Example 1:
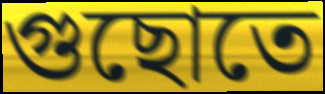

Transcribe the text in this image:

গুছোতে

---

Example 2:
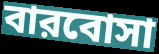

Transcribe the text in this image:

বারবোসা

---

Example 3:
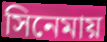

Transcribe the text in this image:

সিনেমায়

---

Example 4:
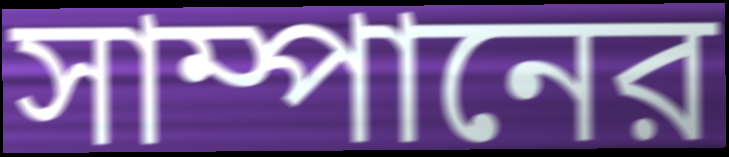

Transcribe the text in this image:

সাম্পানের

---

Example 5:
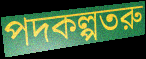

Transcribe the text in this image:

পদকল্পতরু